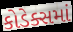
કોડેક્સમાં